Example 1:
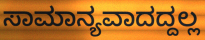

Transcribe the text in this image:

ಸಾಮಾನ್ಯವಾದದ್ದಲ್ಲ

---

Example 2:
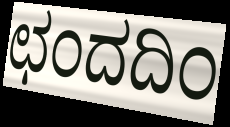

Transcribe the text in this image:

ಛಂದದಿಂ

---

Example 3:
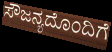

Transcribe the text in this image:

ಸೌಜನ್ಯದೊಂದಿಗೆ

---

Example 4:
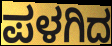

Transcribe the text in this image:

ಪಳಗಿದ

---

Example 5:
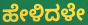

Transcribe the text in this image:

ಹೇಳಿದಳೇ